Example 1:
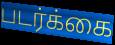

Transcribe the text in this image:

படர்க்கை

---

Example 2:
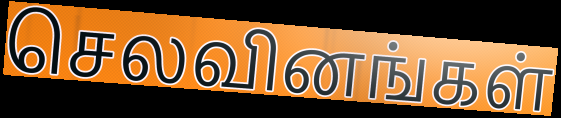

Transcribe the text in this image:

செலவினங்கள்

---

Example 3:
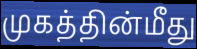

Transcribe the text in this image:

முகத்தின்மீது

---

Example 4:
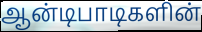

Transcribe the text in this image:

ஆன்டிபாடிகளின்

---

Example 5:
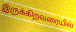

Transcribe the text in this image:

இருக்கிறவரையில்